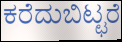
ಕರೆದುಬಿಟ್ಟರೆ